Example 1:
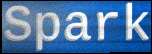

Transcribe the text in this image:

Spark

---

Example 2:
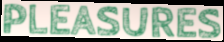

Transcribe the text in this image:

PLEASURES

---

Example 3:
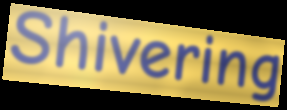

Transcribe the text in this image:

Shivering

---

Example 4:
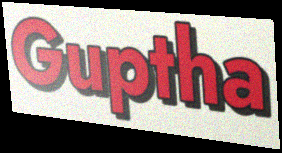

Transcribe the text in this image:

Guptha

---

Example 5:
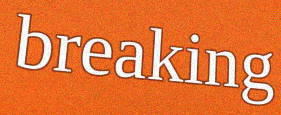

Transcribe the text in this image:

breaking